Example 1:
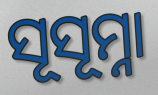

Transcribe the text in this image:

ସୂସୂମ୍ନା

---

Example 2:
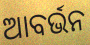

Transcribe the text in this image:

ଆବର୍ଭନ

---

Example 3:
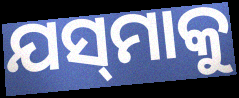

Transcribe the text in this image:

ଯସ୍‌ମାକୁ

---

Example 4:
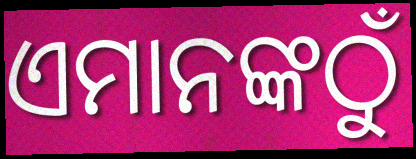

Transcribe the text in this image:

ଏମାନଙ୍କଠୁଁ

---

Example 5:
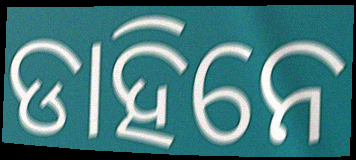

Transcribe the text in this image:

ଡାହିନେ